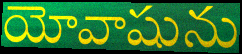
యోవాషును